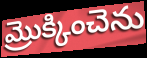
మ్రొక్కించెను